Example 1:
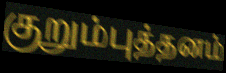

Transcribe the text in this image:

குறும்புத்தனம்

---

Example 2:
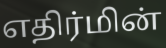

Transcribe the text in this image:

எதிர்மின்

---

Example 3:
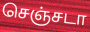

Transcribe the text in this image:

செஞ்சடா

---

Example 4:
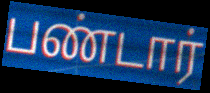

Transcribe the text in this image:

பண்டார்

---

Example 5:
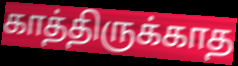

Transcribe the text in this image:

காத்திருக்காத